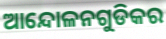
ଆନ୍ଦୋଳନଗୁଡିକର